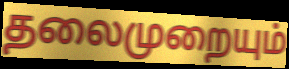
தலைமுறையும்